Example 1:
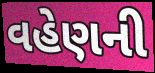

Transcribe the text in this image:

વહેણની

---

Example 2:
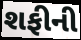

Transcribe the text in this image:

શફીની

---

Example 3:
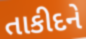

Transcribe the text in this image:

તાકીદને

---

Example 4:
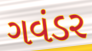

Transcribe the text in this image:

ગવંડર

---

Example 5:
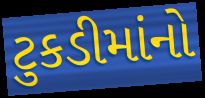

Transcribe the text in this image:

ટુકડીમાંનો